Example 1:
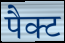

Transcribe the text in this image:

पैक्ट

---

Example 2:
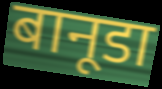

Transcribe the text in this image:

बानूडा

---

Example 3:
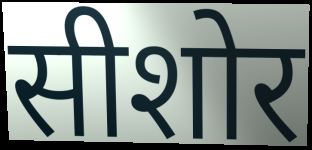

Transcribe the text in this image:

सीशोर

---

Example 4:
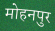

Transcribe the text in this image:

मोहनपुर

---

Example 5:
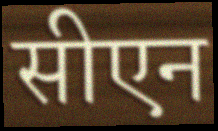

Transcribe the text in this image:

सीएन